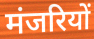
मंजरियों